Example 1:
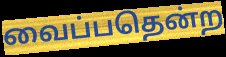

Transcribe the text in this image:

வைப்பதென்ற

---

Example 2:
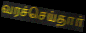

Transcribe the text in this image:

வரச்செய்தார்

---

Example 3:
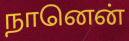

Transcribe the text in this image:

நானென்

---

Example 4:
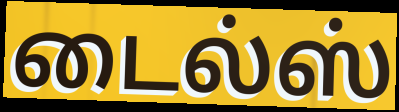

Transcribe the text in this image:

டைல்ஸ்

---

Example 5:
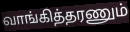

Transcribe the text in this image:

வாங்கித்தரணும்